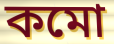
কমো